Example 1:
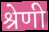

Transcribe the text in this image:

श्रेणी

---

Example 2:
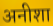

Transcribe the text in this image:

अनीशा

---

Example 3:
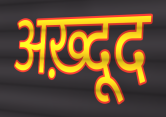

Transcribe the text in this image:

अख़्दूद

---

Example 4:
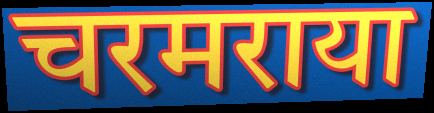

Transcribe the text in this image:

चरमराया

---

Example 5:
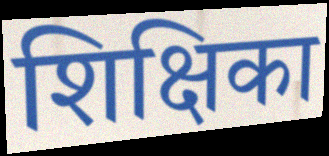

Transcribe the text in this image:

शिक्षिका